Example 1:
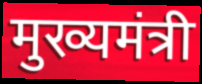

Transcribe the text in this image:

मुख्यमंत्री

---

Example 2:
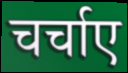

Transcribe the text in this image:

चर्चाए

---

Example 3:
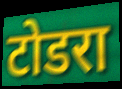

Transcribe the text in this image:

टोडरा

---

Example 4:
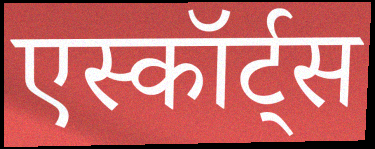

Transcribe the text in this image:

एस्कॉर्ट्स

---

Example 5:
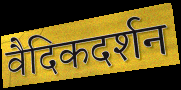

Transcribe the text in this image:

वैदिकदर्शन